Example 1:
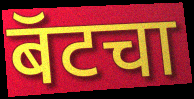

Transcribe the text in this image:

बॅटचा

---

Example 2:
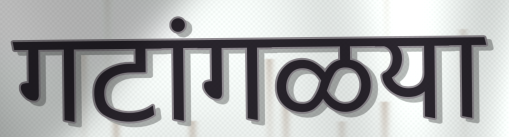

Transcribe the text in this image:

गटांगळया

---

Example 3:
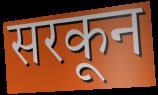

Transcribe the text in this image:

सरकून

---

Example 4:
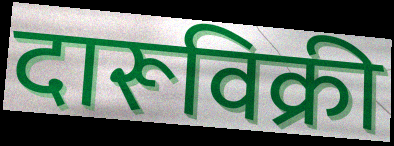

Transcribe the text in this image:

दारूविक्री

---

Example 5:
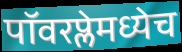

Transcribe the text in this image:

पॉवरप्लेमध्येच